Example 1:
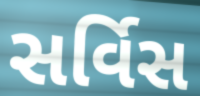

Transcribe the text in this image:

સર્વિસ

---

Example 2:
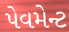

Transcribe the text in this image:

પેવમેન્ટ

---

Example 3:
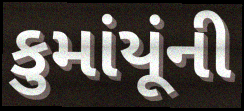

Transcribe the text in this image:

કુમાંયૂંની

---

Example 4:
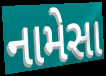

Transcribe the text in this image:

નામેસા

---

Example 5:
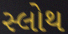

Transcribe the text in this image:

સ્લોથ